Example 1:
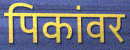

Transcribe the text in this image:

पिकांवर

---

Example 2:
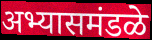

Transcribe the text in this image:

अभ्यासमंडळे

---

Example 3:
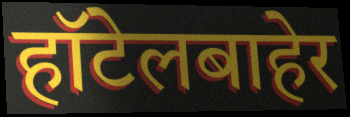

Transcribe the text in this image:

हॉटेलबाहेर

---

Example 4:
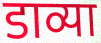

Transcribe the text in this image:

डाव्या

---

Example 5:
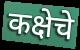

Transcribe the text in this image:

कक्षेचे